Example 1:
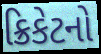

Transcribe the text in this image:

ક્રિકેટનો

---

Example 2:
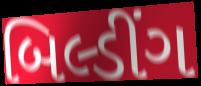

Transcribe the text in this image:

બિલ્ડીંગ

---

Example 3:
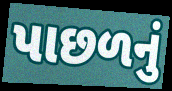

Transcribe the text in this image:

પાછળનું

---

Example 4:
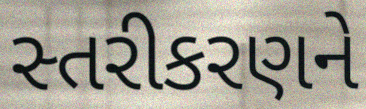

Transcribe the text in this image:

સ્તરીકરણને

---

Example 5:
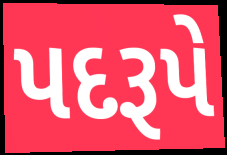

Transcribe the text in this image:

પદરૂપે